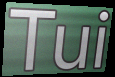
Tui